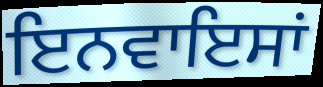
ਇਨਵਾਇਸਾਂ